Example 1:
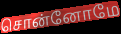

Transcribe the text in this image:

சொன்னோமே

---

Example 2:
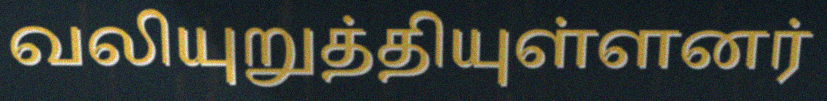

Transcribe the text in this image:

வலியுறுத்தியுள்ளனர்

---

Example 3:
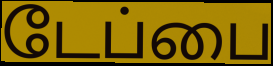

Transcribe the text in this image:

டேப்பை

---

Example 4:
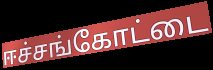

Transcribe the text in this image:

ஈச்சங்கோட்டை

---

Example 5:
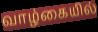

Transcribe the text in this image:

வாழ்கையில்